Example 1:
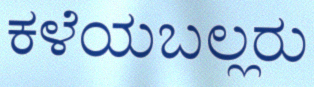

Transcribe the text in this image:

ಕಳೆಯಬಲ್ಲರು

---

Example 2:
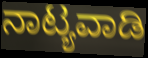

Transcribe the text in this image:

ನಾಟ್ಯವಾಡಿ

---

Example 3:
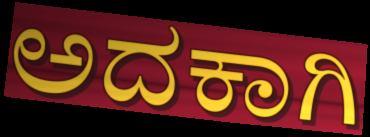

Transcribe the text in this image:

ಅದಕಾಗಿ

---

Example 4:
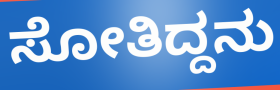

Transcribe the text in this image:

ಸೋತಿದ್ದನು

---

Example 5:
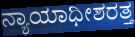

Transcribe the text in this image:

ನ್ಯಾಯಾಧೀಶರತ್ತ